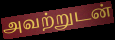
அவற்றுடன்